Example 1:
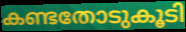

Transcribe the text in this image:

കണ്ടതോടുകൂടി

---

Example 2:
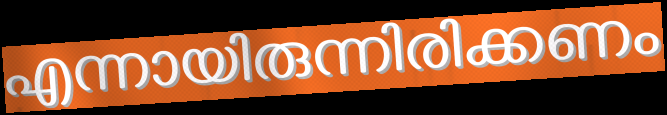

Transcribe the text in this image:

എന്നായിരുന്നിരിക്കണം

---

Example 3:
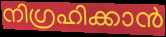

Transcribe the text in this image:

നിഗ്രഹിക്കാൻ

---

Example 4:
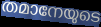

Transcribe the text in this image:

തമാനേയുടെ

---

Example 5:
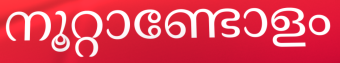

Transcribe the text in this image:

നൂറ്റാണ്ടോളം